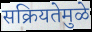
सक्रियतेमुळे